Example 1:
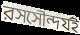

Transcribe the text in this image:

রসসৌন্দর্যই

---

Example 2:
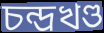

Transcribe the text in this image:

চন্দ্রখণ্ড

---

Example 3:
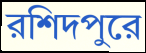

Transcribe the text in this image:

রশিদপুরে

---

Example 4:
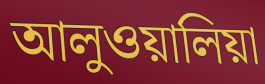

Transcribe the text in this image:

আলুওয়ালিয়া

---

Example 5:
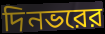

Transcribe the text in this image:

দিনভরের